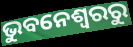
ଭୁବନେଶ୍ୱରରୁ